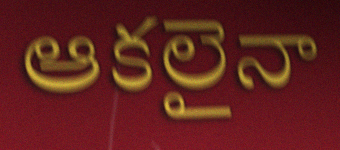
ఆకలైనా